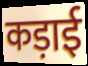
कड़ाई